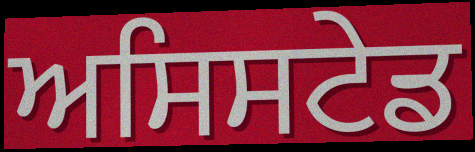
ਅਸਿਸਟੇਡ